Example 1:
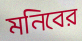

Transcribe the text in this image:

মনিবের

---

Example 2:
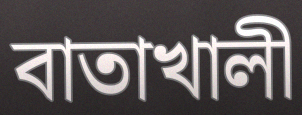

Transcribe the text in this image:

বাতাখালী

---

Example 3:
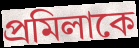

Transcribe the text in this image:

প্রমিলাকে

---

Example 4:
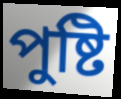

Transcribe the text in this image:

পুষ্টি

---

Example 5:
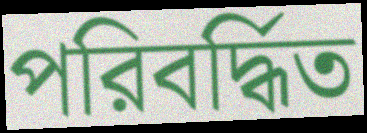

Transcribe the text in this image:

পরিবর্দ্ধিত